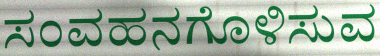
ಸಂವಹನಗೊಳಿಸುವ